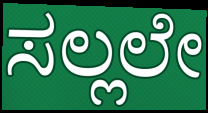
ಸಲ್ಲಲೇ